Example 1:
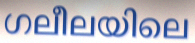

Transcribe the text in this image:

ഗലീലയിലെ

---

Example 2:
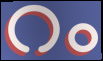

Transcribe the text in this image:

റം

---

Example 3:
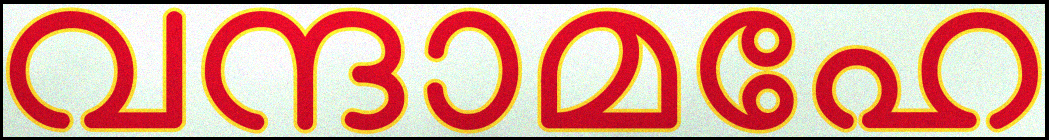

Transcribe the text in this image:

വന്ദാമഹേ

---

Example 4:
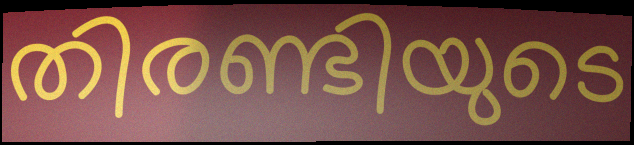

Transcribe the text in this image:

തിരണ്ടിയുടെ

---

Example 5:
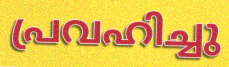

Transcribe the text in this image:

പ്രവഹിച്ചു